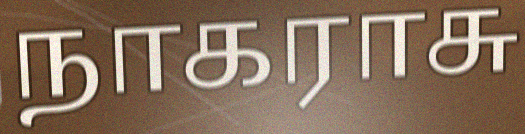
நாகராசு